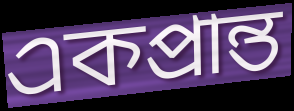
একপ্রান্ত